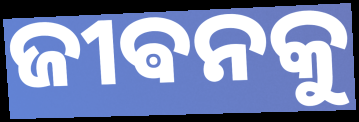
ଜୀଵନକୁ